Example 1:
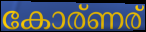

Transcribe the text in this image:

കോര്ണര്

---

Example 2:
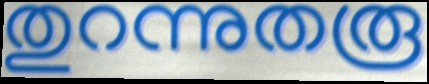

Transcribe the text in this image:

തുറന്നുതരൂ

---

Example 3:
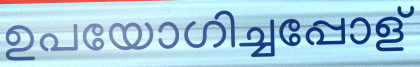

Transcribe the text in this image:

ഉപയോഗിച്ചപ്പോള്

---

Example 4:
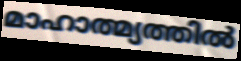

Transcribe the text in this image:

മാഹാത്മ്യത്തിൽ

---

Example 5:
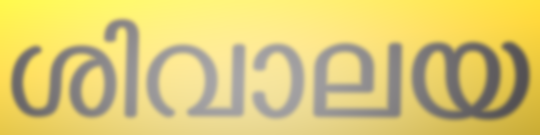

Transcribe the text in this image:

ശിവാലയ